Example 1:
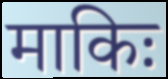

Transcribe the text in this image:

माकिः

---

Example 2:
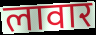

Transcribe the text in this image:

लावार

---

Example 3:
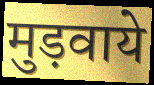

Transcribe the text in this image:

मुड़वाये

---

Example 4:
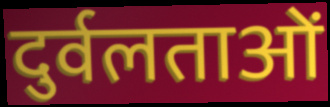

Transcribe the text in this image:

दुर्वलताओं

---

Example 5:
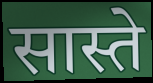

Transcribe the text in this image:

सास्ते